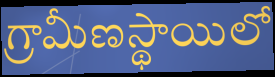
గ్రామీణస్థాయిలో